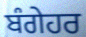
ਬੰਗੇਹਰ